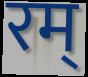
रम्